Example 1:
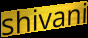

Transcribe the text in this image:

shivani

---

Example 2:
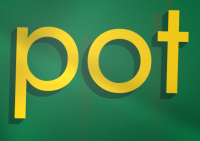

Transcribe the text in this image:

pot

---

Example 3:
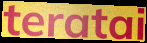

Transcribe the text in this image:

teratai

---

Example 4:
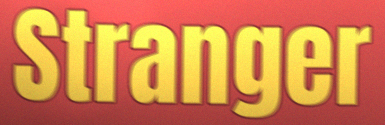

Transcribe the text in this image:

Stranger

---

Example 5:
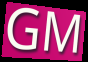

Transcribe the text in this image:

GM